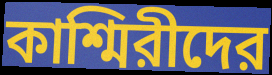
কাশ্মিরীদের